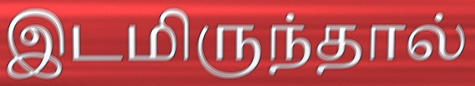
இடமிருந்தால்